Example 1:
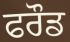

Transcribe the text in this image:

ਫਰੌਡ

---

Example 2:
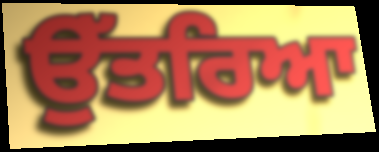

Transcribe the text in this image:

ਉੱਤਰਿਆ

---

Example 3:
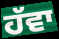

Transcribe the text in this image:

ਹੱਵਾ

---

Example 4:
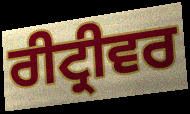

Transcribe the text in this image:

ਰੀਟ੍ਰੀਵਰ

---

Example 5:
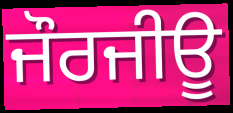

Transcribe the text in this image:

ਜੌਰਜੀਊ